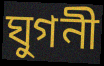
ঘুগনী